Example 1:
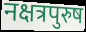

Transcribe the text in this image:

नक्षत्रपुरुष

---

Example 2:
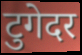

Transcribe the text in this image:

टुगेदर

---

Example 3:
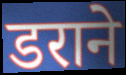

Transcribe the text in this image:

डराने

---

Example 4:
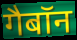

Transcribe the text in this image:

गैबॉन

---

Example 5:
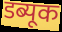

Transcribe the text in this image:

डब्यूक